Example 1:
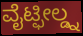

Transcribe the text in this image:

ವೈಟ್ಫೀಲ್ಡ್ನ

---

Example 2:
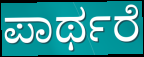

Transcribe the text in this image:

ಪಾರ್ಥರೆ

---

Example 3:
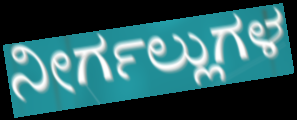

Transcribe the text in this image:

ನೀರ್ಗಲ್ಲುಗಳ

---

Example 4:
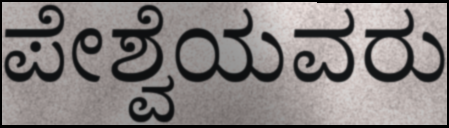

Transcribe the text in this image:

ಪೇಶ್ವೆಯವರು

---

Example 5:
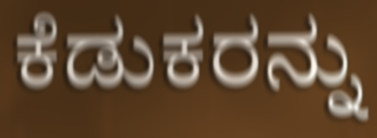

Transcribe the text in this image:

ಕೆಡುಕರನ್ನು